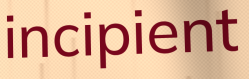
incipient